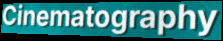
Cinematography